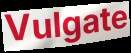
Vulgate